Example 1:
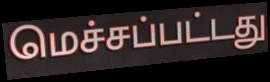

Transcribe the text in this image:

மெச்சப்பட்டது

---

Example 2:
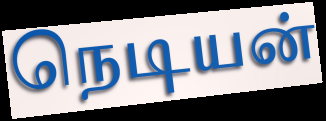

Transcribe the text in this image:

நெடியன்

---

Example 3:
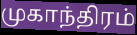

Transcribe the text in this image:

முகாந்திரம்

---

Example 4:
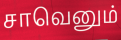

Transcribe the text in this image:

சாவெனும்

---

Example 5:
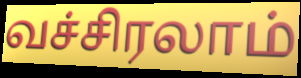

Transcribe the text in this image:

வச்சிரலாம்